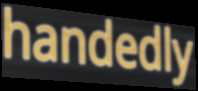
handedly